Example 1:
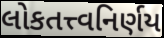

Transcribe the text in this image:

લોકતત્ત્વનિર્ણય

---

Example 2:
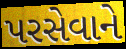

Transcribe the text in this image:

પરસેવાને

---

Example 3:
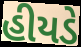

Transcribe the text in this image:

હીયડે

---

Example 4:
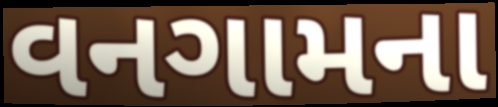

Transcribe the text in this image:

વનગામના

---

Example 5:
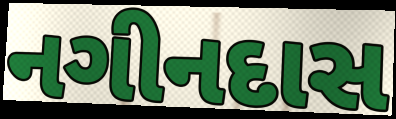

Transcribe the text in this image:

નગીનદાસ